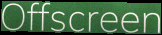
Offscreen